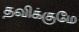
தவிக்குமே